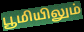
பூமியிலும்